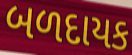
બળદાયક